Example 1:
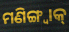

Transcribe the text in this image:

ମଣିଙ୍ଗ୍ୱାକ୍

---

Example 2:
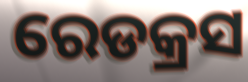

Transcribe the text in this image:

ରେଡକ୍ରସ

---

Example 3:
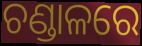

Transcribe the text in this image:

ଚଣ୍ଡାଳରେ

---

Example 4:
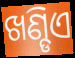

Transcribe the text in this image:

ଖଣ୍ଡିଏ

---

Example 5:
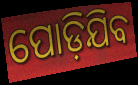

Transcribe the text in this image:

ପୋଡ଼ିଯିବ